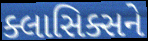
ક્લાસિક્સને